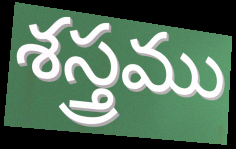
శస్త్రము